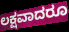
ಲಕ್ಷವಾದರೂ